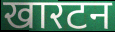
खारटन